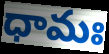
ధామః